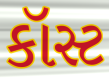
કૉસ્ટ